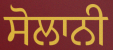
ਸੋਲਾਨੀ